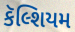
કૅલ્શિયમ